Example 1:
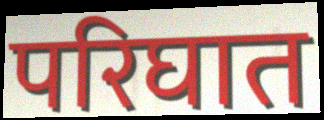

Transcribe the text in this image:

परिघात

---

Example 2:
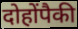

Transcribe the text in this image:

दोहोंपैकी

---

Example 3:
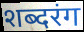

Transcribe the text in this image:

शब्दरंग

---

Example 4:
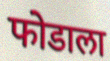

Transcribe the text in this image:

फोडाला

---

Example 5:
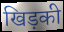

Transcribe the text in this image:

खिड़की